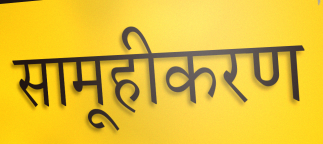
सामूहीकरण